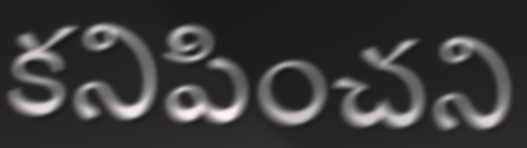
కనిపించని